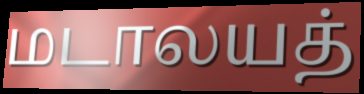
மடாலயத்